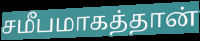
சமீபமாகத்தான்